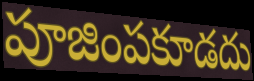
పూజింపకూడదు